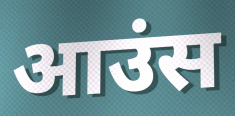
आउंस